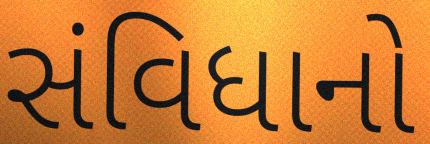
સંવિધાનો